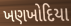
ખણખોદિયા